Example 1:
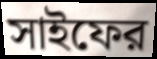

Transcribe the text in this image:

সাইফের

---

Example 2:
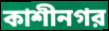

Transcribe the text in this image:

কাশীনগর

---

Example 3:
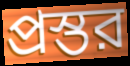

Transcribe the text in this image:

প্রস্তর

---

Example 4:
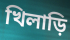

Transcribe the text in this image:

খিলাড়ি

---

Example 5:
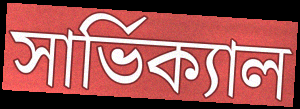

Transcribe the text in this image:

সার্ভিক্যাল